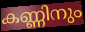
കണ്ണിനും